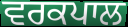
ਵਰਕਪਾਲ